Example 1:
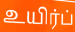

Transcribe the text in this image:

உயிர்ப்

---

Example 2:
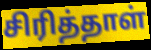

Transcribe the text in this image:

சிரித்தாள்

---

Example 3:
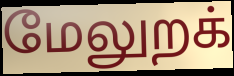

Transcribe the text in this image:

மேலுறக்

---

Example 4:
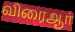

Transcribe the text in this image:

விரைஆர்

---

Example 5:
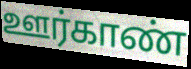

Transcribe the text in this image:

ஊர்காண்